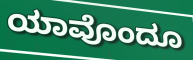
ಯಾವೊಂದೂ